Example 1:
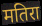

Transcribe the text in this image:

मतिरा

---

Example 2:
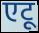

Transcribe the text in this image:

एटू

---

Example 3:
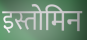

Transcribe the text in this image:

इस्तोमिन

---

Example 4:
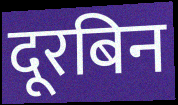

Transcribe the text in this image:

दूरबिन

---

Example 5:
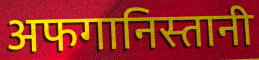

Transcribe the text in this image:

अफगानिस्तानी